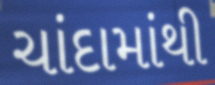
ચાંદામાંથી